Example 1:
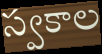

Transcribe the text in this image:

స్వకాల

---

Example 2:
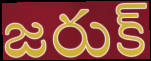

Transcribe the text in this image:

జరుక్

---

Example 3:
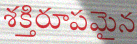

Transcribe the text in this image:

శక్తిరూపమైన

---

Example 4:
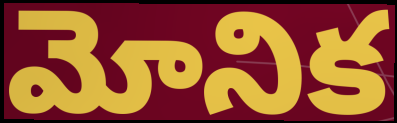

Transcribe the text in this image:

మోనిక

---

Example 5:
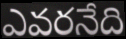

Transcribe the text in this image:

ఎవరనేది